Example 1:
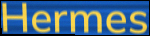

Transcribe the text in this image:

Hermes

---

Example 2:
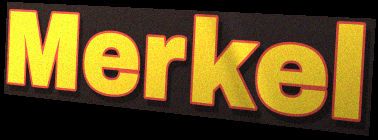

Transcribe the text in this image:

Merkel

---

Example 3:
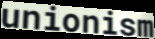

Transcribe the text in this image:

unionism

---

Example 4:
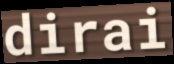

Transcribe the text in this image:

dirai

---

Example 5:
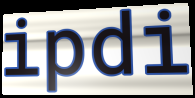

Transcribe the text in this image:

ipdi